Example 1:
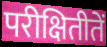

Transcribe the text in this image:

परीक्षितीतें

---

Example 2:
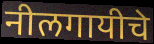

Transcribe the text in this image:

नीलगायीचे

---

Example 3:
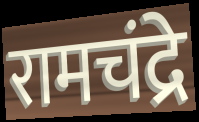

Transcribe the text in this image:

रामचंद्रे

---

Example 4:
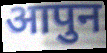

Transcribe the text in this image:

आपुन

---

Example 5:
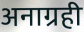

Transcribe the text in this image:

अनाग्रही